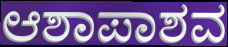
ಆಶಾಪಾಶವ